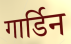
गार्डिन